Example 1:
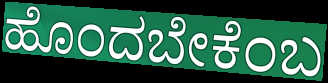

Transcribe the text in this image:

ಹೊಂದಬೇಕೆಂಬ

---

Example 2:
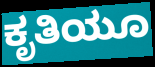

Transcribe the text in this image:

ಕೃತಿಯೂ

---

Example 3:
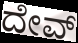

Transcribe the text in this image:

ದೇವ್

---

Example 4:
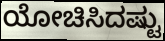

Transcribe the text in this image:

ಯೋಚಿಸಿದಷ್ಟು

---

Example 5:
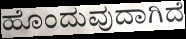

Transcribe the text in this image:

ಹೊಂದುವುದಾಗಿದೆ